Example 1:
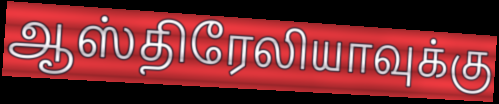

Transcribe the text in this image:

ஆஸ்திரேலியாவுக்கு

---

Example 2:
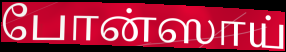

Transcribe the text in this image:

போன்ஸாய்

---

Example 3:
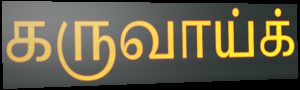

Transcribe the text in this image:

கருவாய்க்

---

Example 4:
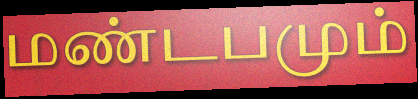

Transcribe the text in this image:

மண்டபமும்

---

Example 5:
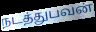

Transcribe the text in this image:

நடத்துபவன்